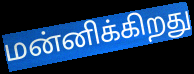
மன்னிக்கிறது